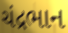
ચંદ્રભાન